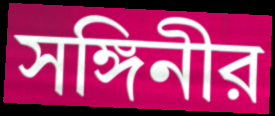
সঙ্গিনীর